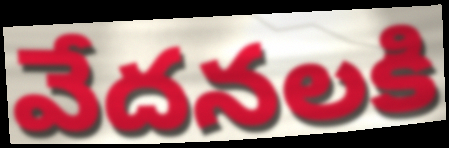
వేదనలకి